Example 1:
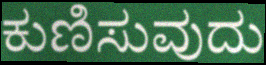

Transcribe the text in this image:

ಕುಣಿಸುವುದು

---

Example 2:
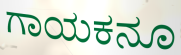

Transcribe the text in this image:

ಗಾಯಕನೂ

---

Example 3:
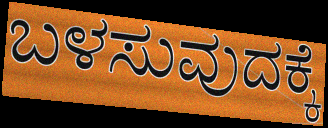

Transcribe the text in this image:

ಬಳಸುವುದಕ್ಕೆ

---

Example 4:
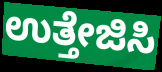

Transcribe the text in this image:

ಉತ್ತೇಜಿಸಿ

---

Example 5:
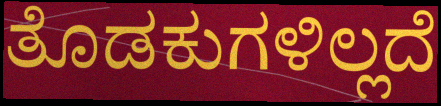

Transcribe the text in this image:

ತೊಡಕುಗಳಿಲ್ಲದೆ